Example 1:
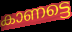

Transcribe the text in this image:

കാണട്ടെ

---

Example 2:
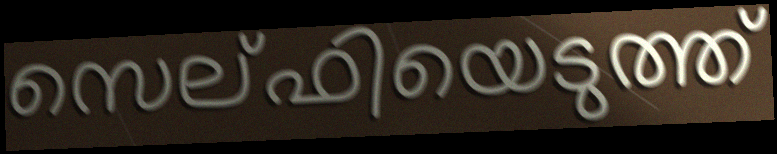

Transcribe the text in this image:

സെല്ഫിയെടുത്ത്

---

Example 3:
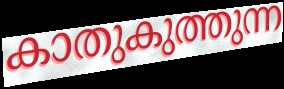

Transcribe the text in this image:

കാതുകുത്തുന്ന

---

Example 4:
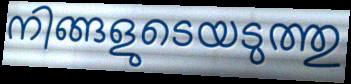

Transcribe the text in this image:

നിങ്ങളുടെയടുത്തു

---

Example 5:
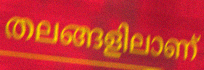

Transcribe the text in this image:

തലങ്ങളിലാണ്